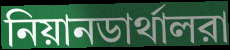
নিয়ানডার্থালরা